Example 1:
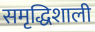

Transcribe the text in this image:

समृद्धिशाली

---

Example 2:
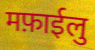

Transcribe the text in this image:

मफ़ाईलु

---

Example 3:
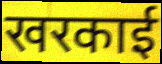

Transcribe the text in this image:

खरकाई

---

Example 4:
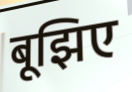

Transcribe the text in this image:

बूझिए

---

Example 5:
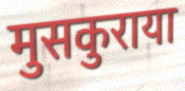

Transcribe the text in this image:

मुसकुराया